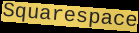
Squarespace